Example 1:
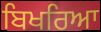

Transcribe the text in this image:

ਬਿਖਰਿਆ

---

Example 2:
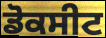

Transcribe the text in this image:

ਡੋਕਸੀਟ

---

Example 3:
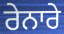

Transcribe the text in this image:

ਰੇਨਾਰੇ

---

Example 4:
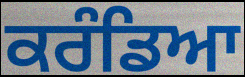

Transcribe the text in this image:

ਕਰੰਡਿਆ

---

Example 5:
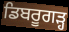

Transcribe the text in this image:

ਡਿਬਰੂਗੜ੍ਹ